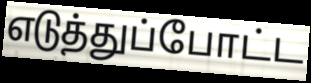
எடுத்துப்போட்ட